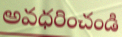
అవధరించండి